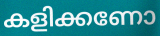
കളിക്കണോ